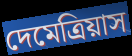
দেমেত্রিয়াস